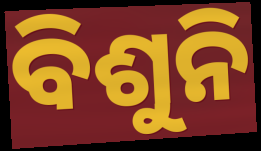
ବିଶୁନି